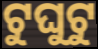
ଟୁଘୁଟୁ